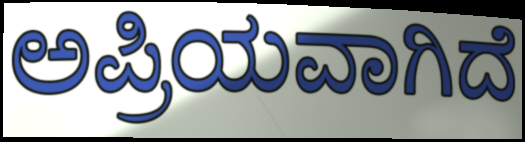
ಅಪ್ರಿಯವಾಗಿದೆ